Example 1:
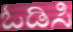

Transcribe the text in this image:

ಓಡಿಸಿ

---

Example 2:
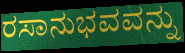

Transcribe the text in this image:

ರಸಾನುಭವವನ್ನು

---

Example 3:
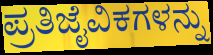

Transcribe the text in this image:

ಪ್ರತಿಜೈವಿಕಗಳನ್ನು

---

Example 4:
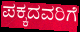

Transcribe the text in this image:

ಪಕ್ಕದವರಿಗೆ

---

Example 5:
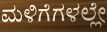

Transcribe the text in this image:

ಮಳಿಗೆಗಳಲ್ಲೇ